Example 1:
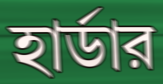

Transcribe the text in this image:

হার্ডার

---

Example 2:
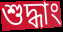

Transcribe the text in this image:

শুদ্ধাং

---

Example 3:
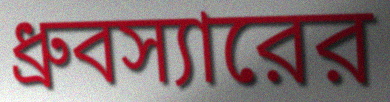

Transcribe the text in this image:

ধ্রুবস্যারের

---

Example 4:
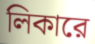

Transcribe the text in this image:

লিকারে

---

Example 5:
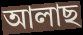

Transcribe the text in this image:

আলাছ